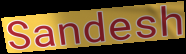
Sandesh